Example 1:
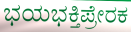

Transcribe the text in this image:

ಭಯಭಕ್ತಿಪ್ರೇರಕ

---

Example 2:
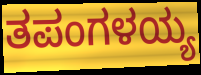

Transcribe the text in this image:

ತಪಂಗಳಯ್ಯ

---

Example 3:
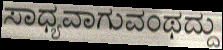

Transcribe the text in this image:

ಸಾಧ್ಯವಾಗುವಂಥದ್ದು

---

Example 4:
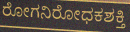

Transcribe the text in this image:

ರೋಗನಿರೋಧಕಶಕ್ತಿ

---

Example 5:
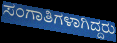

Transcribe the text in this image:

ಸಂಗಾತಿಗಳಾಗಿದ್ದರು